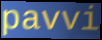
pavvi